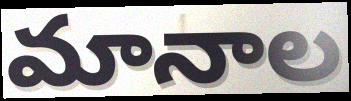
మానాల